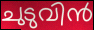
ചുടുവിൻ